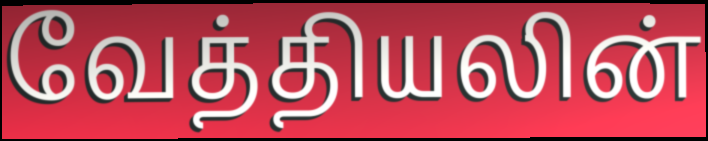
வேத்தியலின்